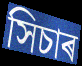
সিচাৰ